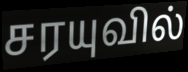
சரயுவில்